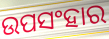
ଉପସଂହାର